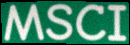
MSCI